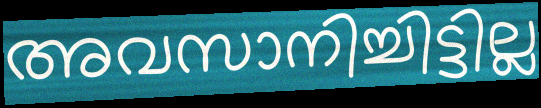
അവസാനിച്ചിട്ടില്ല